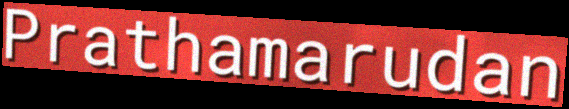
Prathamarudan